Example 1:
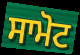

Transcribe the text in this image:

ਸਾਮੋਟ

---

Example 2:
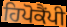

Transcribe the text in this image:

ਹਿਪੋਕੈਂਪੀ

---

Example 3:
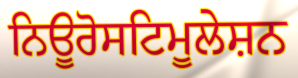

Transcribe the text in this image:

ਨਿਊਰੋਸਟਿਮੂਲੇਸ਼ਨ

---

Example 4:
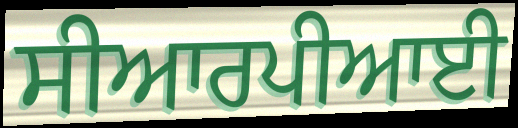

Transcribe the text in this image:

ਸੀਆਰਪੀਆਈ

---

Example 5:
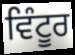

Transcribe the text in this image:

ਵਿੰਟੂਰ